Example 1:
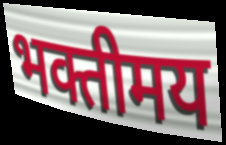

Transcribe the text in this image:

भक्तीमय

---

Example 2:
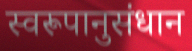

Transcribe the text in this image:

स्वरूपानुसंधान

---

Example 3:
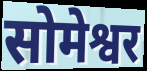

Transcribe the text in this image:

सोमेश्वर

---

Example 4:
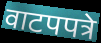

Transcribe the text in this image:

वाटपपत्रे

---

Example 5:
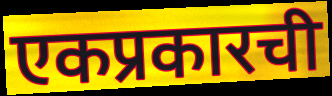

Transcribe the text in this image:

एकप्रकारची